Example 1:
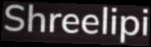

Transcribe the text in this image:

Shreelipi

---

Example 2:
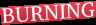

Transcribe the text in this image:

BURNING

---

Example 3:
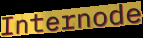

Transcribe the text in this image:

Internode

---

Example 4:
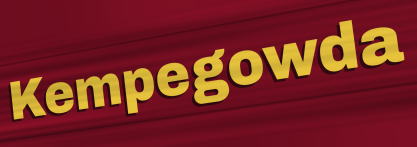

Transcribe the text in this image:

Kempegowda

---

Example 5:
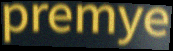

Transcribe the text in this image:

premye